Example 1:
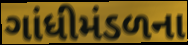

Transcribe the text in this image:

ગાંધીમંડળના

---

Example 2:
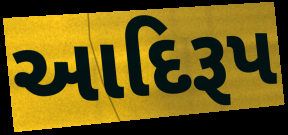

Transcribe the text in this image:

આદિરૂપ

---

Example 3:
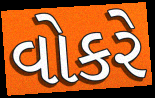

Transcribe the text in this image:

વોકરે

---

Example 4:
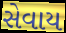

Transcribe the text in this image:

સેવાય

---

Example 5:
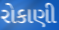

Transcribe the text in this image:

રોકાણી